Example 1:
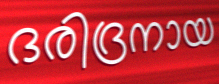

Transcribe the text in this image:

ദരിദ്രനായ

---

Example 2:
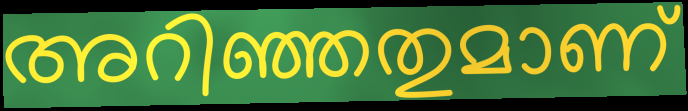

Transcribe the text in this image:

അറിഞ്ഞതുമാണ്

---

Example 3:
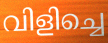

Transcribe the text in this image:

വിളിച്ചെ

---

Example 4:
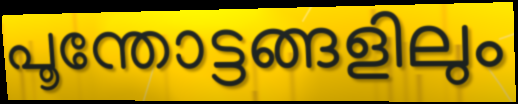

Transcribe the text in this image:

പൂന്തോട്ടങ്ങളിലും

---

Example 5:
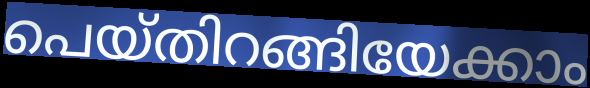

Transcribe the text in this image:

പെയ്തിറങ്ങിയേക്കാം